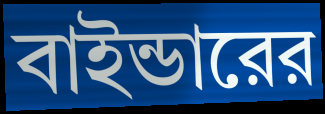
বাইন্ডারের